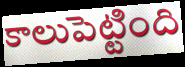
కాలుపెట్టింది